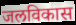
जलविकास